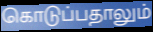
கொடுப்பதாலும்